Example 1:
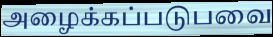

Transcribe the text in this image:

அழைக்கப்படுபவை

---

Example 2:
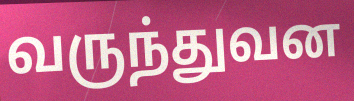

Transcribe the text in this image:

வருந்துவன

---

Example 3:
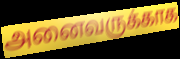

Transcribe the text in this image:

அனைவருக்காக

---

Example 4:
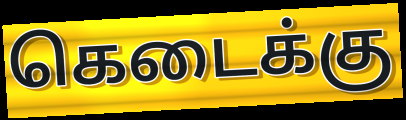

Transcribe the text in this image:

கெடைக்கு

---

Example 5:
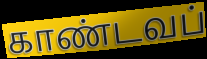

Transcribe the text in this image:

காண்டவப்